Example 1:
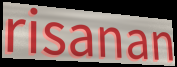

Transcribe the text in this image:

risanan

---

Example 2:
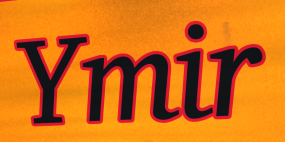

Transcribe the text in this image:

Ymir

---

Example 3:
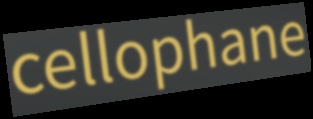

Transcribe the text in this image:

cellophane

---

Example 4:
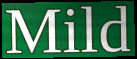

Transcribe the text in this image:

Mild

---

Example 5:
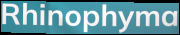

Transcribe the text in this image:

Rhinophyma